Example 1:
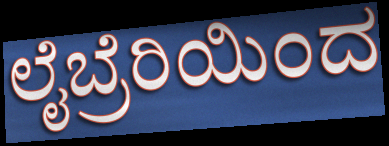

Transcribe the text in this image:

ಲೈಬ್ರೆರಿಯಿಂದ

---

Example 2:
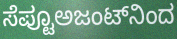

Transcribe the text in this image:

ಸೆಪ್ಟೂಅಜಂಟ್‌ನಿಂದ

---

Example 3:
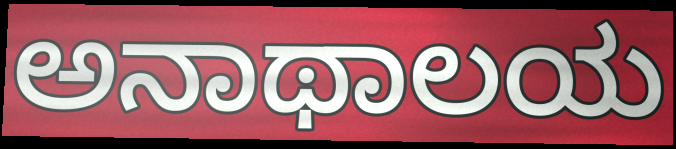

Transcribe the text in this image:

ಅನಾಥಾಲಯ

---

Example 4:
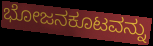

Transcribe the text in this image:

ಭೋಜನಕೂಟವನ್ನು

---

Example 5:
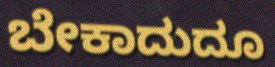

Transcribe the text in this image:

ಬೇಕಾದುದೂ